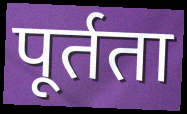
पूर्तता